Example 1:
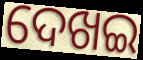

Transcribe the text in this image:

ଦେଖଇ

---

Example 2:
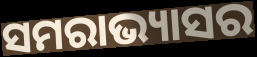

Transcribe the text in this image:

ସମରାଭ୍ୟାସର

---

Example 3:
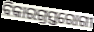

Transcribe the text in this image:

ବିକାରଗ୍ରସ୍ତରୋଗୀ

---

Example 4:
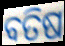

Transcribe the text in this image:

ବତିଷ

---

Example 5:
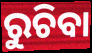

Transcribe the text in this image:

ରୁଚିବା